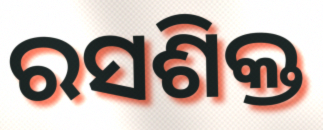
ରସଶିକ୍ତ